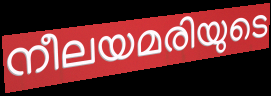
നീലയമരിയുടെ